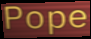
Pope